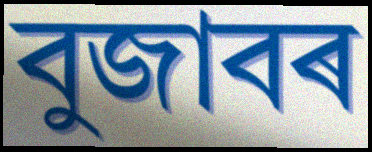
বুজাবৰ